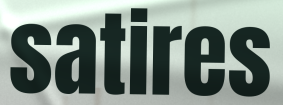
satires